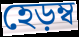
হেড়ম্ব